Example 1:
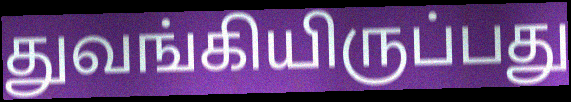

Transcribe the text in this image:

துவங்கியிருப்பது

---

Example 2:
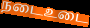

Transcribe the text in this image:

நடைஉடை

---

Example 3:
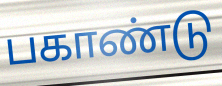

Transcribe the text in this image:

பகாண்டு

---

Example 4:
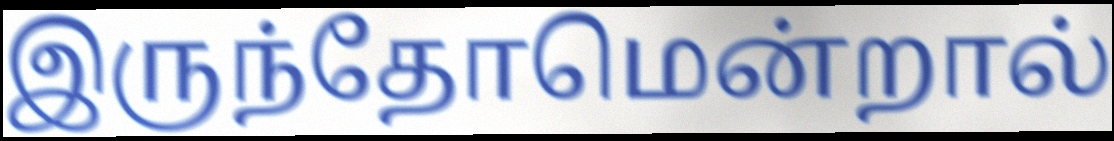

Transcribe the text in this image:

இருந்தோமென்றால்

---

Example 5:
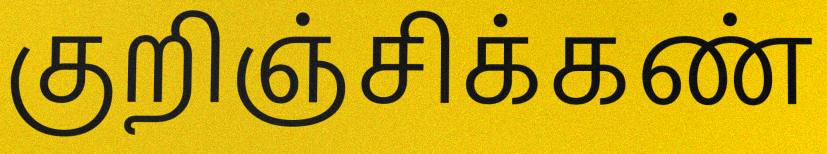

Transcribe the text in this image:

குறிஞ்சிக்கண்